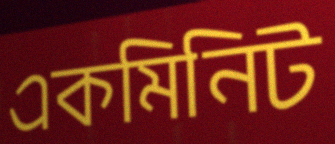
একমিনিট